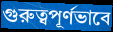
গুরুত্বপূর্ণভাবে